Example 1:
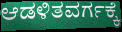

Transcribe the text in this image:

ಆಡಳಿತವರ್ಗಕ್ಕೆ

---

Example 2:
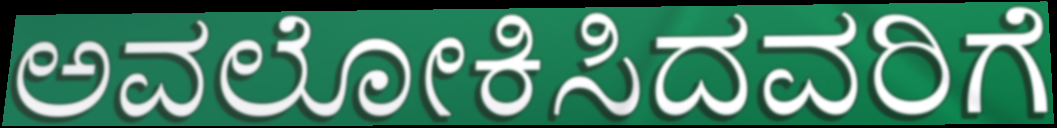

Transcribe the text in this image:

ಅವಲೋಕಿಸಿದವರಿಗೆ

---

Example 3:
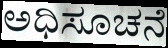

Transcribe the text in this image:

ಅಧಿಸೂಚನೆ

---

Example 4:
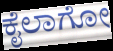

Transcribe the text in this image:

ಕೈಲಾಗೋ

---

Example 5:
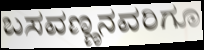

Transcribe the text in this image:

ಬಸವಣ್ಣನವರಿಗೂ